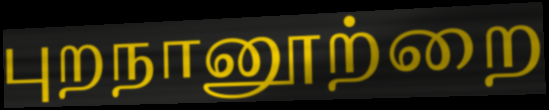
புறநானூற்றை